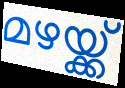
മഴയ്ക്ക്